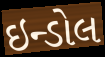
ઇન્ડોલ